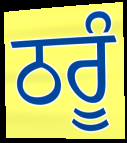
ਠਰੂੰ